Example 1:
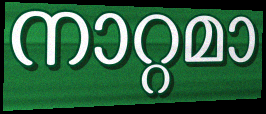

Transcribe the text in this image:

നാറ്റമാ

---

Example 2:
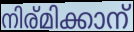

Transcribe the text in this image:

നിര്മിക്കാന്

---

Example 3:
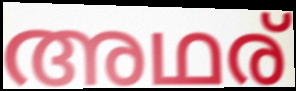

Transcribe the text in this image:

അഥര്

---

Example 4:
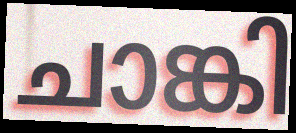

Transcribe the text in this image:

ചാങ്കി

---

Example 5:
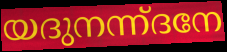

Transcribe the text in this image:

യദുനന്ന്ദനേ